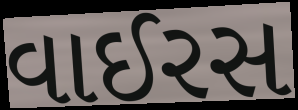
વાઈરસ